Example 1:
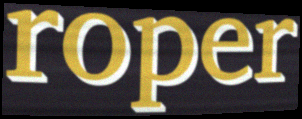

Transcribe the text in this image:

roper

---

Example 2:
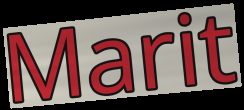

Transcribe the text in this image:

Marit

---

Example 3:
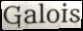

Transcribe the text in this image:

Galois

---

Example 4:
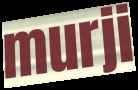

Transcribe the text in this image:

murji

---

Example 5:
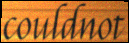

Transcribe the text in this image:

couldnot